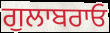
ਗੁਲਾਬਰਾਓ